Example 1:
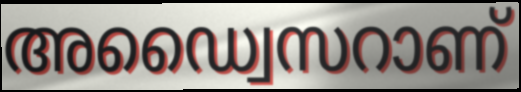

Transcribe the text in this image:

അഡ്വൈസറാണ്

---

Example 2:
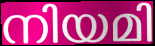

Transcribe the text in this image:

നിയമി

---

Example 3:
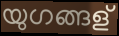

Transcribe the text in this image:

യുഗങ്ങള്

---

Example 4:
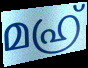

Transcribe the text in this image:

മഹ്ര്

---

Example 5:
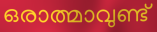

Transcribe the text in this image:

ഒരാത്മാവുണ്ട്